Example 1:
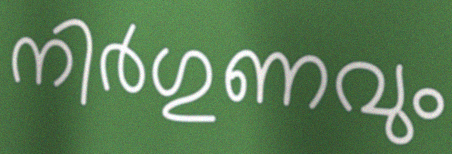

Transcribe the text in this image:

നിർഗുണവും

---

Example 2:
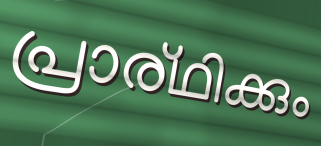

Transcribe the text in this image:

പ്രാര്ഥിക്കും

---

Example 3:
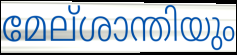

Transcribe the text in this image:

മേല്ശാന്തിയും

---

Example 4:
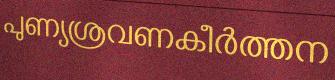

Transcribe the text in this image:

പുണ്യശ്രവണകീർത്തന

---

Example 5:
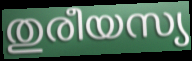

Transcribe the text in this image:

തുരീയസ്യ